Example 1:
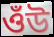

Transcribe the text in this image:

ওঁউ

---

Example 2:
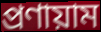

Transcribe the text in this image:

প্রণায়াম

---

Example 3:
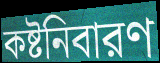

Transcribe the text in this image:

কষ্টনিবারণ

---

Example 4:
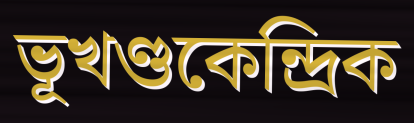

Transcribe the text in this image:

ভূখণ্ডকেন্দ্রিক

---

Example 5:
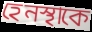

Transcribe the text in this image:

হেনস্থাকে